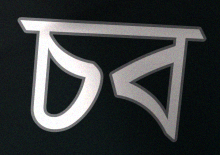
চব